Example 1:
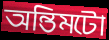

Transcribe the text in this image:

অন্তিমটো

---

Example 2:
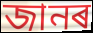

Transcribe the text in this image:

জানৰ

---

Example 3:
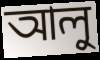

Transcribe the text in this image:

আলু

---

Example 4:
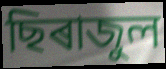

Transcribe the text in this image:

ছিৰাজুল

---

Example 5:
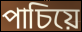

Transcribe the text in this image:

পাচিয়ে